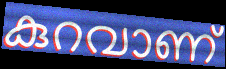
കുറവാണ്